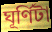
ঘূর্ণিটা